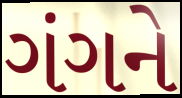
ગંગને